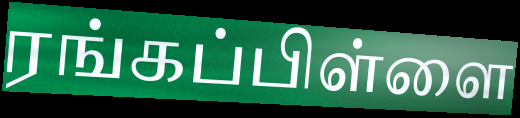
ரங்கப்பிள்ளை